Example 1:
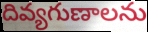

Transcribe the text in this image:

దివ్యగుణాలను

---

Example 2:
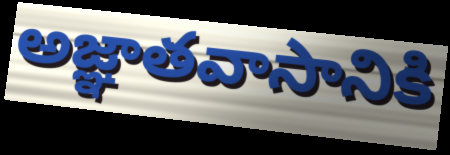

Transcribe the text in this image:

అజ్ఞాతవాసానికి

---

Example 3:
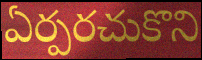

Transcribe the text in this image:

ఏర్పరచుకొని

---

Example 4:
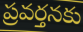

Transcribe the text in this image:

ప్రవర్తనకు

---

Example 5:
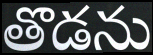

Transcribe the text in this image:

తొడను